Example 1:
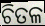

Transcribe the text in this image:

ଚିତଳ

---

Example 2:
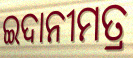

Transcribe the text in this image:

ଇଦାନୀମତ୍ର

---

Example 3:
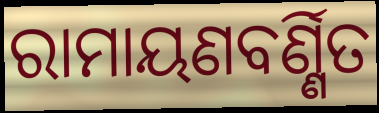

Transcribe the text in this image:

ରାମାୟଣବର୍ଣ୍ଣିତ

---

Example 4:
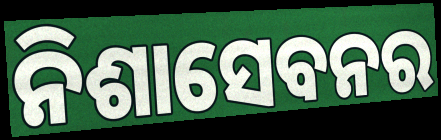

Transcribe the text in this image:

ନିଶାସେବନର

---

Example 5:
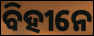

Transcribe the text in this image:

ବିହୀନେ